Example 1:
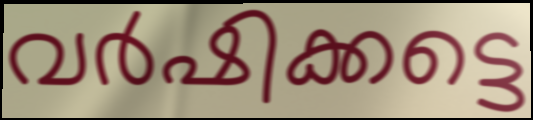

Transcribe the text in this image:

വർഷിക്കട്ടെ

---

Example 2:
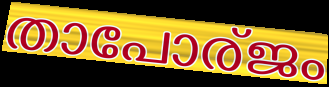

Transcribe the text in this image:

താപോര്ജം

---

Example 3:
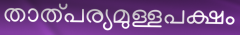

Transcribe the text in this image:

താത്പര്യമുള്ളപക്ഷം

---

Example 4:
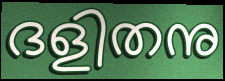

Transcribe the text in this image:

ദളിതനു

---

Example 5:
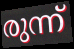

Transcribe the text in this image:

രുന്ന്